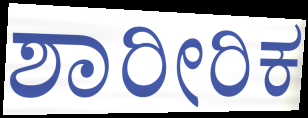
ಶಾರೀರಿಕ